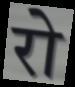
रो